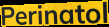
Perinatol